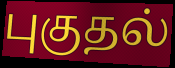
புகுதல்